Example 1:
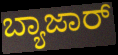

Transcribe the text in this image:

ಬ್ಯಾಜಾರ್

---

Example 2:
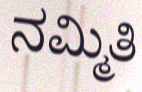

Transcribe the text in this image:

ನಮ್ಮಿತಿ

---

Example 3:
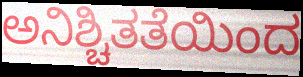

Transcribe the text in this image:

ಅನಿಶ್ಚಿತತೆಯಿಂದ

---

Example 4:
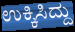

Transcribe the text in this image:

ಉಕ್ಕಿಸಿದ್ದು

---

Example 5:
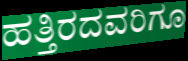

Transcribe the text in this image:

ಹತ್ತಿರದವರಿಗೂ